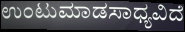
ಉಂಟುಮಾಡಸಾಧ್ಯವಿದೆ